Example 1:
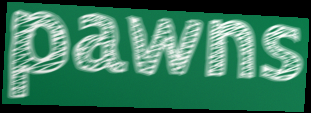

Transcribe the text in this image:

pawns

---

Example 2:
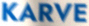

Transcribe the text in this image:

KARVE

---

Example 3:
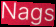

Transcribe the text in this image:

Nags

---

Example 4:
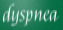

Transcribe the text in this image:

dyspnea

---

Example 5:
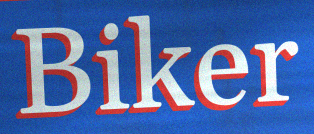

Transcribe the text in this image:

Biker